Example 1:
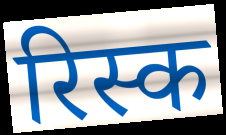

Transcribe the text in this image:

रिस्क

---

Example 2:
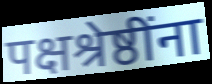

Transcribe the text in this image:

पक्षश्रेष्ठींना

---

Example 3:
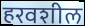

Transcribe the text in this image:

हरवशील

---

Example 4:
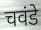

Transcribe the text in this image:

चवंडे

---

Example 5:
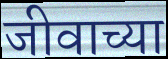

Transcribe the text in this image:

जीवाच्या